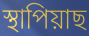
স্থাপিয়াছ